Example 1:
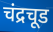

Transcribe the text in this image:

चंद्रचूड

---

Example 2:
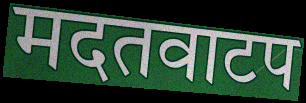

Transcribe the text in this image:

मदतवाटप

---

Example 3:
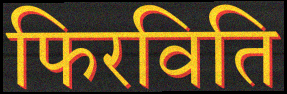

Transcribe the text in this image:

फिरविति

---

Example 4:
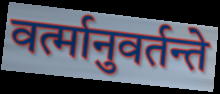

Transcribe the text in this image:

वर्त्मानुवर्तन्ते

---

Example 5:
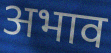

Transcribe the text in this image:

अभाव